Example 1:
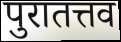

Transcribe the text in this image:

पुरातत्तव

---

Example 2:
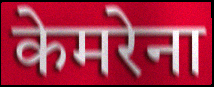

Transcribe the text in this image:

केमरेना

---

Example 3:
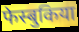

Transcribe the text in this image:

फेस्बुकिया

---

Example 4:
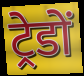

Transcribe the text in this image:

ट्रेडों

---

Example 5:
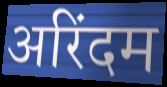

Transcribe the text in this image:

अरिंदम